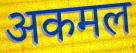
अकमल